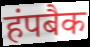
हंपबैक